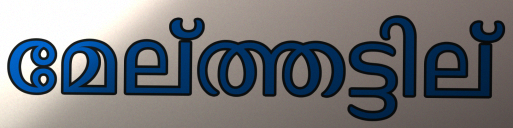
മേല്ത്തട്ടില്